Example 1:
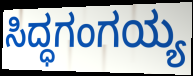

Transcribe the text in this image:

ಸಿದ್ಧಗಂಗಯ್ಯ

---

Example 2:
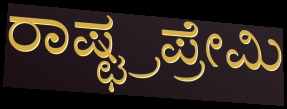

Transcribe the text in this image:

ರಾಷ್ಟ್ರಪ್ರೇಮಿ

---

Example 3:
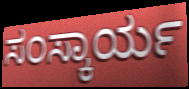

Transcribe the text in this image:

ಸಂಸ್ಕಾರ್ಯ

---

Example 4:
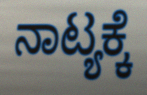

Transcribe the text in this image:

ನಾಟ್ಯಕ್ಕೆ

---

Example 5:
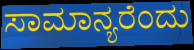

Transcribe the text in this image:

ಸಾಮಾನ್ಯರೆಂದು